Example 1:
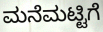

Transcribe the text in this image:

ಮನೆಮಟ್ಟಿಗೆ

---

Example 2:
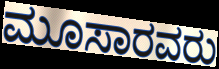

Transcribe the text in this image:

ಮೂಸಾರವರು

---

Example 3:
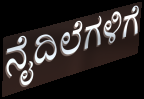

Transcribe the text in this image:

ನೈದಿಲೆಗಳಿಗೆ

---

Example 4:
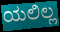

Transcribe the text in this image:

ಯಲಿಲ್ಲ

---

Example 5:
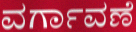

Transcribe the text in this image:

ವರ್ಗಾವಣೆ